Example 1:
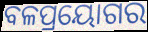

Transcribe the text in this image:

ବଳପ୍ରୟୋଗର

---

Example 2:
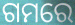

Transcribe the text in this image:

ଗମରେ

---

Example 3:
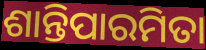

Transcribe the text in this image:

ଶାନ୍ତିପାରମିତା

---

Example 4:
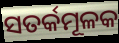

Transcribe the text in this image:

ସତର୍କମୂଳକ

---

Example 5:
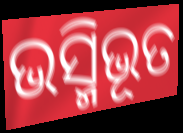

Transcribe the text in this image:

ଭସ୍ମିଭୂତ